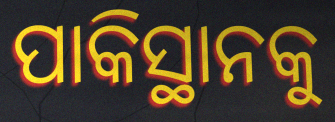
ପାକିସ୍ଥାନକୁ